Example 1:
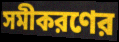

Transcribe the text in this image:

সমীকরণের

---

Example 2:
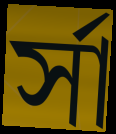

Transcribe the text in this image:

র্সা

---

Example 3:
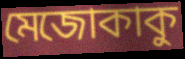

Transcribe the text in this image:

মেজোকাকু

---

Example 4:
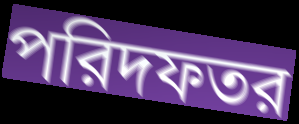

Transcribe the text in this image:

পরিদফতর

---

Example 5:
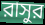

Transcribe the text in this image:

রাসুর